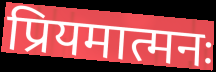
प्रियमात्मनः